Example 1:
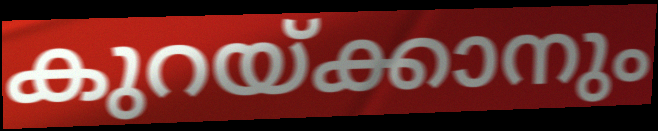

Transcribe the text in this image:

കുറയ്ക്കാനും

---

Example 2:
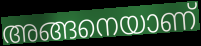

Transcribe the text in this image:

അങ്ങനെയാണ്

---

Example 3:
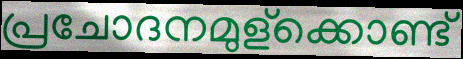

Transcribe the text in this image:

പ്രചോദനമുള്ക്കൊണ്ട്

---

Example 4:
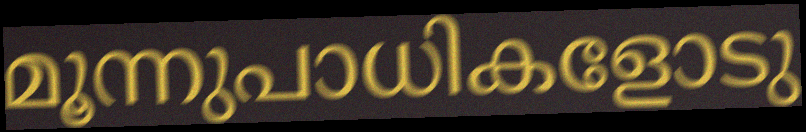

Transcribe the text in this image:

മൂന്നുപാധികളോടു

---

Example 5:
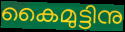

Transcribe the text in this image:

കൈമുട്ടിനു